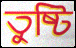
তুষ্টি